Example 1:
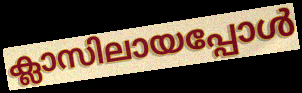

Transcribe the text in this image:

ക്ലാസിലായപ്പോൾ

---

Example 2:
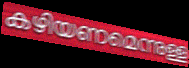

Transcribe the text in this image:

കഴിയണമെന്നുള്ള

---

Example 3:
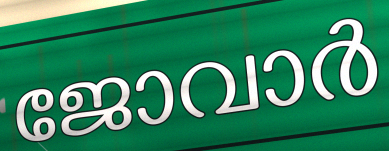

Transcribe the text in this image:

ജോവാർ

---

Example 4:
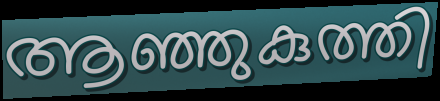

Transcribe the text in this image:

ആഞ്ഞുകുത്തി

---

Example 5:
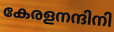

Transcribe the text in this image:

കേരളനന്ദിനി